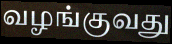
வழங்குவது